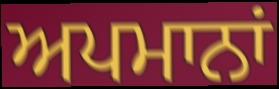
ਅਪਮਾਨਾਂ